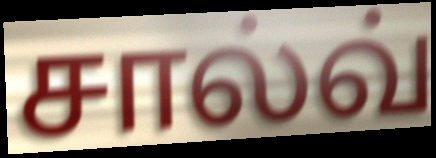
சால்வ்